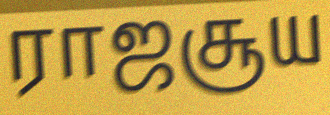
ராஜசூய